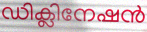
ഡിക്ലിനേഷൻ